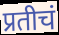
प्रतीचं